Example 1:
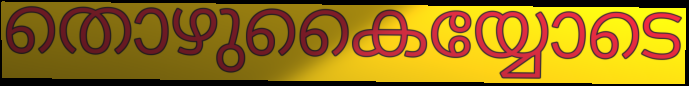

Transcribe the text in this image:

തൊഴുകൈയ്യോടെ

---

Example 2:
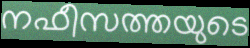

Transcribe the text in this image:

നഫീസത്തയുടെ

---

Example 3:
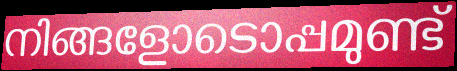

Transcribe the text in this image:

നിങ്ങളോടൊപ്പമുണ്ട്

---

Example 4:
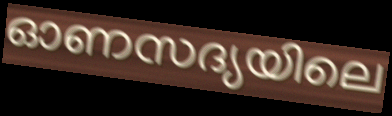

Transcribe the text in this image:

ഓണസദ്യയിലെ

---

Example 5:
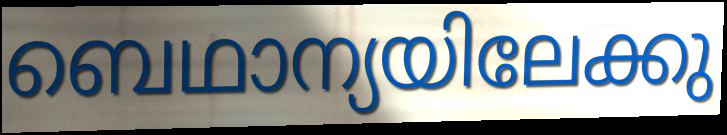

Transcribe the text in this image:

ബെഥാന്യയിലേക്കു